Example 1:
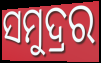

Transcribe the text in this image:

ସମୁଦ୍ରର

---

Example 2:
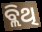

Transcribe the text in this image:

ବ୍ଲିଥି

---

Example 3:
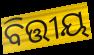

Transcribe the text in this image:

ବିତ୍ତୀୟ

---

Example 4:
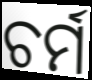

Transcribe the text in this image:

ଚର୍ମ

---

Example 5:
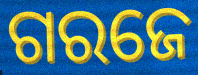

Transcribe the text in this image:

ଗରଜେ